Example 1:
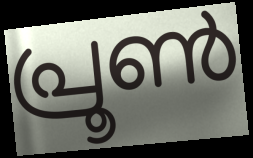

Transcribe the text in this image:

പ്രൂൺ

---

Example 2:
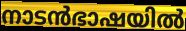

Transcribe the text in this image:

നാടൻഭാഷയിൽ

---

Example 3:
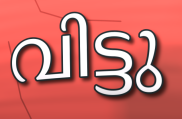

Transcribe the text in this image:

വിട്ടു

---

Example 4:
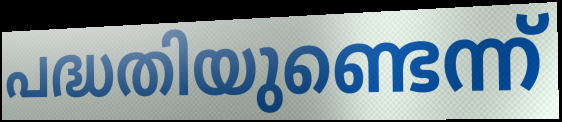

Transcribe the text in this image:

പദ്ധതിയുണ്ടെന്ന്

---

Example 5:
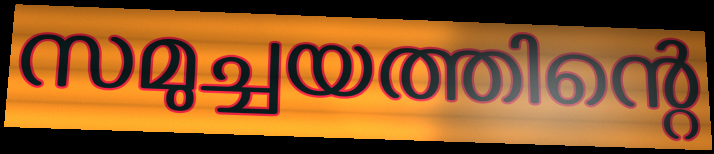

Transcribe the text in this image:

സമുച്ചയത്തിന്റെ